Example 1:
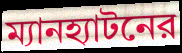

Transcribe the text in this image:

ম্যানহ্যাটনের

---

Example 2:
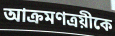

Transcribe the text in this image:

আক্রমণত্রয়ীকে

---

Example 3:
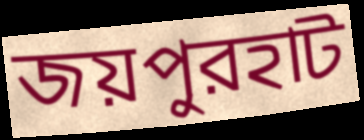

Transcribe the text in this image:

জয়পুরহাট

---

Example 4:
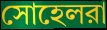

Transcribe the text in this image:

সোহেলরা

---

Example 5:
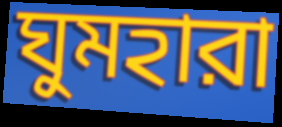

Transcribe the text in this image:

ঘুমহারা